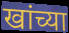
खांच्या